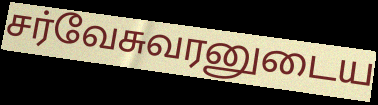
சர்வேசுவரனுடைய